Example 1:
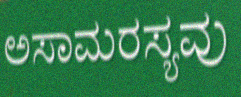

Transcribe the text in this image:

ಅಸಾಮರಸ್ಯವು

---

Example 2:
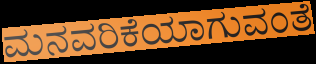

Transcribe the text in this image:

ಮನವರಿಕೆಯಾಗುವಂತೆ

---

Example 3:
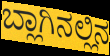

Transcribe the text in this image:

ಬ್ಲಾಗಿನಲ್ಲಿನ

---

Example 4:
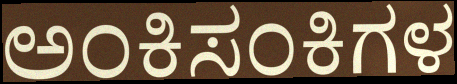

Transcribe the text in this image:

ಅಂಕಿಸಂಕಿಗಳ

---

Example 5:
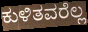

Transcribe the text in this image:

ಕುಳಿತವರೆಲ್ಲ